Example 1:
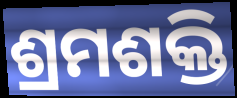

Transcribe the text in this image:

ଶ୍ରମଶକ୍ତି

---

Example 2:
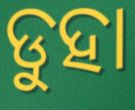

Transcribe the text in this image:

ଡୁହା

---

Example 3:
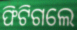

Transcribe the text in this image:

ଫିଟିଗଲେ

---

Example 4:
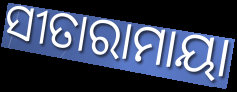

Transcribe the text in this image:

ସୀତାରାମାୟା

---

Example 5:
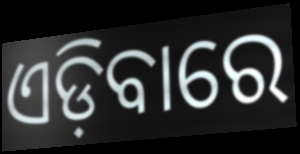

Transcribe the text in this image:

ଏଡ଼ିବାରେ